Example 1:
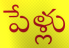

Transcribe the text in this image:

పేళ్లు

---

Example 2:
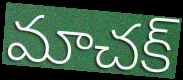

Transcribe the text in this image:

మాచక్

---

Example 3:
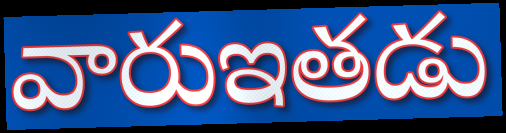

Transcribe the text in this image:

వారుఇతడు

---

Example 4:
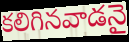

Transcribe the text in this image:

కలిగినవాడనై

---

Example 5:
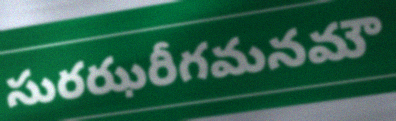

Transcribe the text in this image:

సురఝరీగమనమౌ